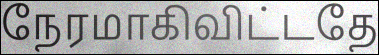
நேரமாகிவிட்டதே